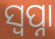
ସ୍ଵପ୍ନା